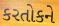
કરતોકને